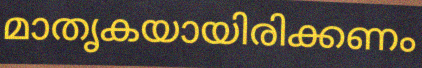
മാതൃകയായിരിക്കണം